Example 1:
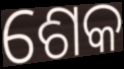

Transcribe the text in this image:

ଶେକ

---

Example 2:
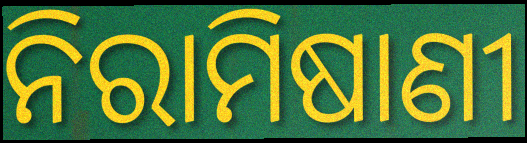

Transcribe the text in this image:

ନିରାମିଷାଣୀ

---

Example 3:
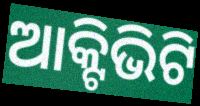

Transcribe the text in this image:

ଆକ୍ଟିଭିଟି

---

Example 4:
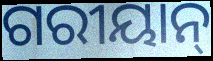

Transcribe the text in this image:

ଗରୀୟାନ୍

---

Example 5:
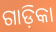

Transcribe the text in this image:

ଗାଡ଼ିକା